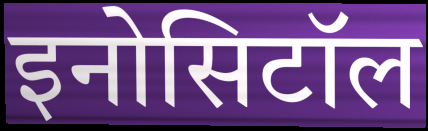
इनोसिटॉल